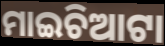
ମାଇଚିଆଟା